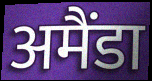
अमैंडा